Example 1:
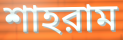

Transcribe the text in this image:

শাহরাম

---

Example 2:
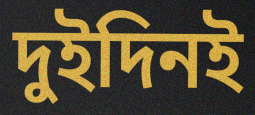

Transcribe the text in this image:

দুইদিনই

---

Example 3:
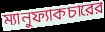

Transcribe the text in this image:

ম্যানুফ্যাকচারের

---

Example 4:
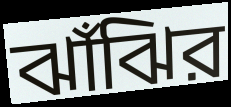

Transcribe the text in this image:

ঝাঁঝির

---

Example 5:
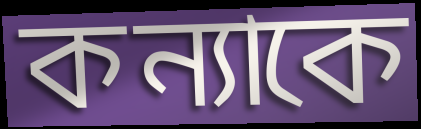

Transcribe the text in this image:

কন্যাকে